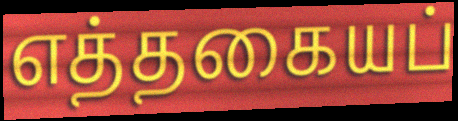
எத்தகையப்